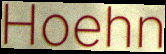
Hoehn